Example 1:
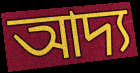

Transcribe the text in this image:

আদ্য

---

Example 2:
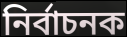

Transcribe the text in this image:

নিৰ্বাচনক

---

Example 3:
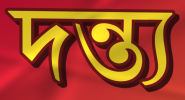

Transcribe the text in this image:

দন্ত্য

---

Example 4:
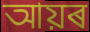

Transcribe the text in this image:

আয়ৰ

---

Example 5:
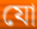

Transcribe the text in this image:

যো